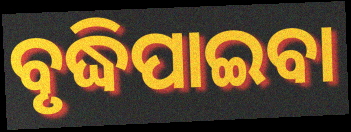
ବୃଦ୍ଧିପାଇବା